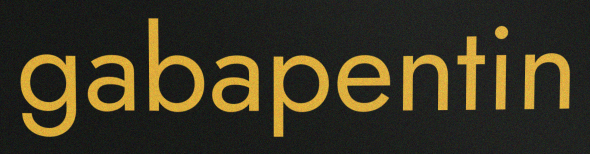
gabapentin